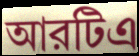
আরটিএ